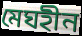
মেঘহীন